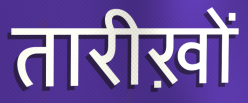
तारीख़ों